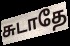
சுடாதே